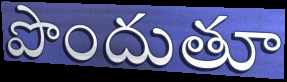
పొందుతూ